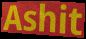
Ashit